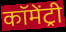
कॉमेंट्री